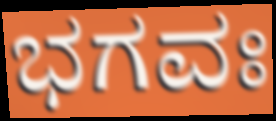
ಭಗವಃ